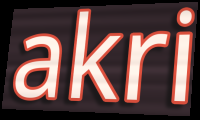
akri